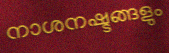
നാശനഷ്ടങ്ങളും